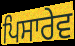
ਪਿਸਾਰੇਵ